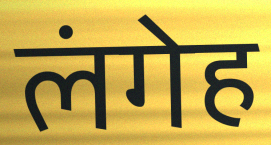
लंगेह